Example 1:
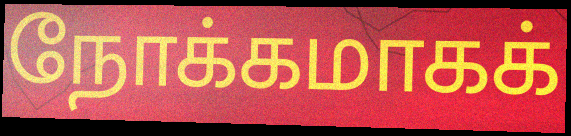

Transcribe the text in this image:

நோக்கமாகக்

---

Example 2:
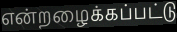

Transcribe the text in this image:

என்றழைக்கப்பட்டு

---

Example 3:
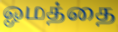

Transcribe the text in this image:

ஓமத்தை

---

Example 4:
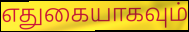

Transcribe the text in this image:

எதுகையாகவும்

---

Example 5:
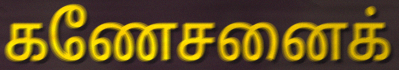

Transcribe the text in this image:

கணேசனைக்